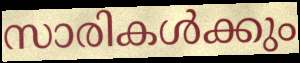
സാരികൾക്കും